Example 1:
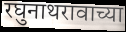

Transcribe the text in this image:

रघुनाथरावाच्या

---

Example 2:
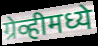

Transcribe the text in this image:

ग्रेव्हीमध्ये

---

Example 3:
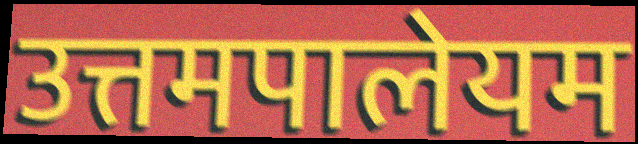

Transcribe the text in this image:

उत्तमपालेयम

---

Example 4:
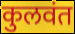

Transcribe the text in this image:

कुलवंत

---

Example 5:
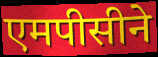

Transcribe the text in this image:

एमपीसीने